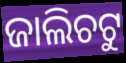
ଜାଲିଚଟୁ